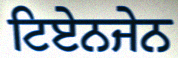
ਟਿਏਨਜੇਨ